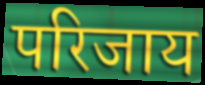
परिजाय